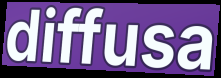
diffusa